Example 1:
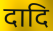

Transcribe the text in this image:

दादि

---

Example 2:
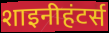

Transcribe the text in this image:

शाइनीहंटर्स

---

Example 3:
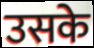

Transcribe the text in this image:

उसके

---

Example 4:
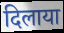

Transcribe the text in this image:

दिलाया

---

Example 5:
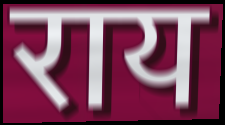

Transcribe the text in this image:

राय